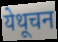
येथूचन